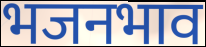
भजनभाव